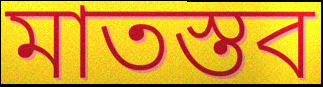
মাতস্তব